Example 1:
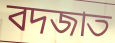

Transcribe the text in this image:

বদজাত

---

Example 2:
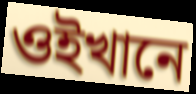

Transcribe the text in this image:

ওইখানে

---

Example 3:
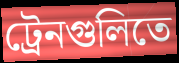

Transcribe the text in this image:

ট্রেনগুলিতে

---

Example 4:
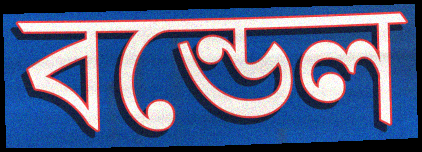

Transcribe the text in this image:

বন্ডেল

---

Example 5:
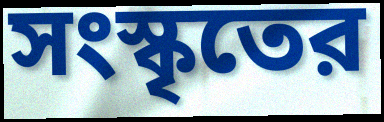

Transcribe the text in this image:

সংস্কৃতের